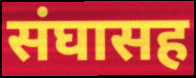
संघासह